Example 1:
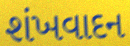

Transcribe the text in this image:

શંખવાદન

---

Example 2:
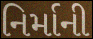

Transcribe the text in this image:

નિર્માની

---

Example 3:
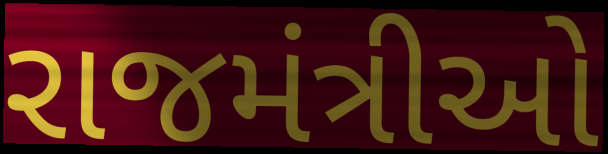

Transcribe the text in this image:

રાજમંત્રીઓ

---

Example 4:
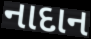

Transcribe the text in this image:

નાદાન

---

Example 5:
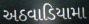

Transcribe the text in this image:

અઠવાડિયામા